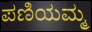
ಪಣಿಯಮ್ಮ